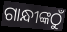
ଗାନ୍ଧୀଙ୍କଠୁଁ